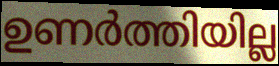
ഉണർത്തിയില്ല